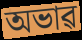
অভাৱ